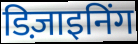
डिज़ाइनिंग